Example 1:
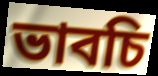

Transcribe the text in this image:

ভাবচি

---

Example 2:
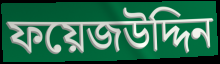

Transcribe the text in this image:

ফয়েজউদ্দিন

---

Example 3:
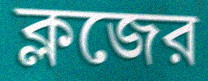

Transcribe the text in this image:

ক্লজের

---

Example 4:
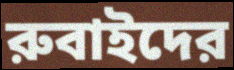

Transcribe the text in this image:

রুবাইদের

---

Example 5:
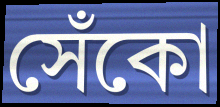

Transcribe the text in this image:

সেঁকো